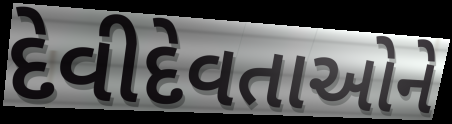
દેવીદેવતાઓને